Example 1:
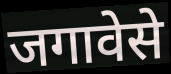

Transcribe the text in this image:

जगावेसे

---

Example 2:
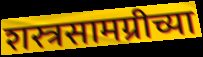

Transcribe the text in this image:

शस्त्रसामग्रीच्या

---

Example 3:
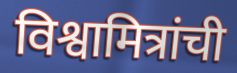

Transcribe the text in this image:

विश्वामित्रांची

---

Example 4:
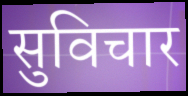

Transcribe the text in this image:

सुविचार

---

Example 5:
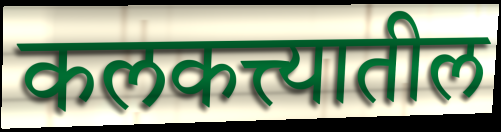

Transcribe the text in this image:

कलकत्त्यातील